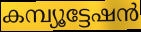
കമ്പ്യൂട്ടേഷൻ